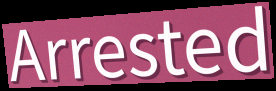
Arrested